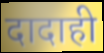
दादाही